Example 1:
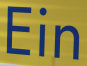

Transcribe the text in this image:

Ein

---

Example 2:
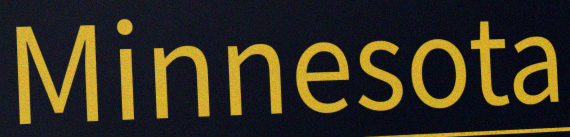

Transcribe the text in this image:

Minnesota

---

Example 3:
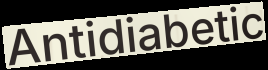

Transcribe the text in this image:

Antidiabetic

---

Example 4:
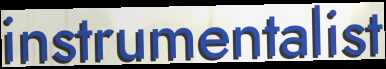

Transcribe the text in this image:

instrumentalist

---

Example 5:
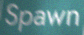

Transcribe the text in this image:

Spawn